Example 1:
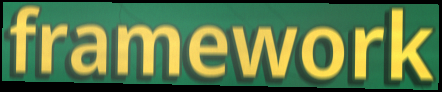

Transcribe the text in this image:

framework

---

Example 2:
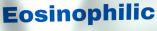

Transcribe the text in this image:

Eosinophilic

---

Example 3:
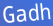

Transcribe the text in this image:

Gadh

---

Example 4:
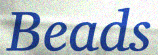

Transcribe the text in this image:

Beads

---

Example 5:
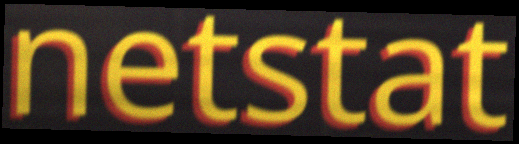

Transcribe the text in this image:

netstat